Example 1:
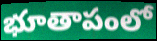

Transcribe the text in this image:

భూతాపంలో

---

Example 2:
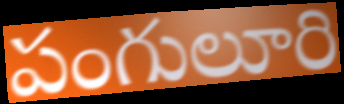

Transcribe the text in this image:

పంగులూరి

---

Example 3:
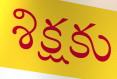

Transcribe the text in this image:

శిక్షకు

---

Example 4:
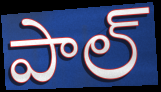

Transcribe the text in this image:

పాల్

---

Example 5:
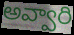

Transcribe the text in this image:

అవ్వారి